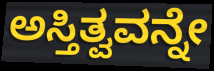
ಅಸ್ತಿತ್ವವನ್ನೇ